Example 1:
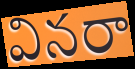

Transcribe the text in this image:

వినరా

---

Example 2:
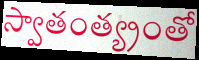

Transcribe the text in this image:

స్వాతంత్య్రంతో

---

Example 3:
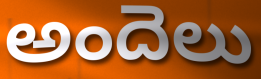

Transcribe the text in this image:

అందెలు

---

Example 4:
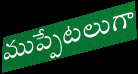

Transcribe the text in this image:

ముప్పేటలుగా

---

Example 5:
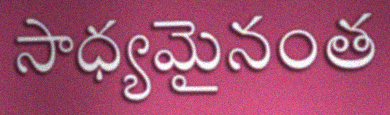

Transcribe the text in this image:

సాధ్యమైనంత